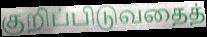
குறிப்பிடுவதைத்